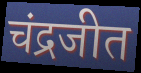
चंद्रजीत